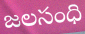
జలసంధి